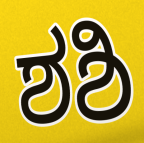
ಶಶಿ